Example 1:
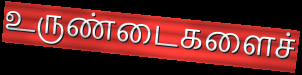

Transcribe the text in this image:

உருண்டைகளைச்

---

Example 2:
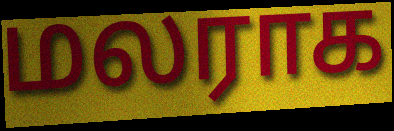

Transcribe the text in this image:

மலராக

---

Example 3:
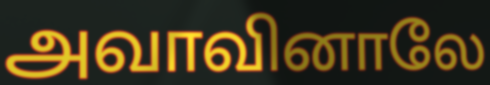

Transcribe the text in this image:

அவாவினாலே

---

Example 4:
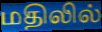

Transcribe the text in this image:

மதிலில்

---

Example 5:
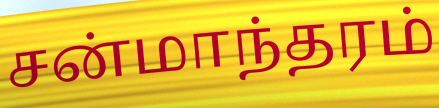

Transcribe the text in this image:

சன்மாந்தரம்